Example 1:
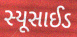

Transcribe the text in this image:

સ્યૂસાઈડ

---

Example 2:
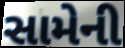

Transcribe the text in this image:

સામેની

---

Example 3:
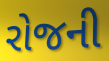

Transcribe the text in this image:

રોજની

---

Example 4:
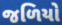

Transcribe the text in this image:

જળિયો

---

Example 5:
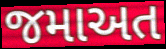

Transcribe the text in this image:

જમાઅત